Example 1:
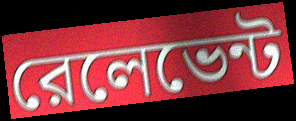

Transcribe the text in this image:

রেলেভেন্ট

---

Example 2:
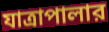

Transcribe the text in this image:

যাত্রাপালার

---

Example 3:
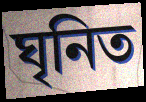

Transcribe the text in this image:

ঘৃনিত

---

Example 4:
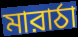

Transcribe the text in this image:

মারাঠা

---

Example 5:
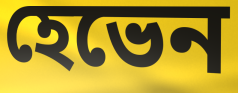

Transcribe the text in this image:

হেভেন